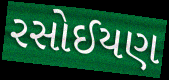
રસોઈયણ